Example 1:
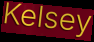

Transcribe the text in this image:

Kelsey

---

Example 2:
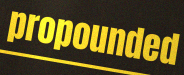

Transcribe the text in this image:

propounded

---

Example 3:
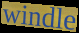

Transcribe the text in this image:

windle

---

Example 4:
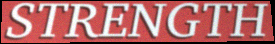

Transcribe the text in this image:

STRENGTH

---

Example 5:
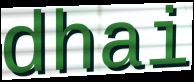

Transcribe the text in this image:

dhai